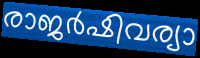
രാജർഷിവര്യാ